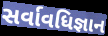
સર્વાવધિજ્ઞાન